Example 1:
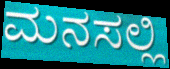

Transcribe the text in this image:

ಮನಸಲ್ಲಿ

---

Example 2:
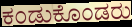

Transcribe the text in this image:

ಕಂಡುಕೊಂಡರು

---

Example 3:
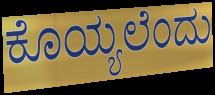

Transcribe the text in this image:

ಕೊಯ್ಯಲೆಂದು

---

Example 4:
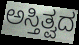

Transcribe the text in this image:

ಅಸ್ತಿತ್ವದ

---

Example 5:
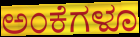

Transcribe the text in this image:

ಅಂಕೆಗಳೂ